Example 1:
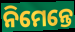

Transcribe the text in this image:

ନିମେନ୍ତେ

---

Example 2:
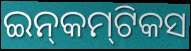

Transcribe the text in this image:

ଇନ୍‍କମ୍‍ଟିକସ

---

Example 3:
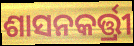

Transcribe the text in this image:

ଶାସନକର୍ତ୍ତ୍ରୀ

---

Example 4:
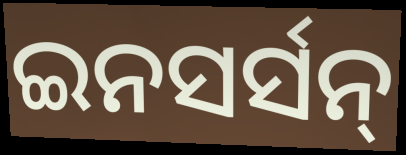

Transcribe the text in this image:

ଇନସର୍ସନ୍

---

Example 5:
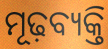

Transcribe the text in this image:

ମୂଢ଼ବ୍ୟକ୍ତି